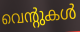
വെന്റുകൾ